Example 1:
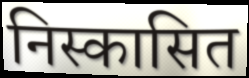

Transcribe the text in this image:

निस्कासित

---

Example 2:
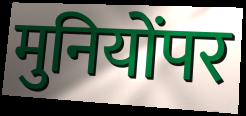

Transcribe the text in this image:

मुनियोंपर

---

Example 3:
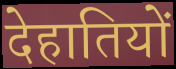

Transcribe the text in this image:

देहातियों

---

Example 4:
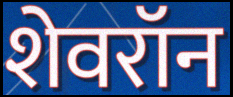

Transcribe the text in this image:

शेवरॉन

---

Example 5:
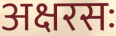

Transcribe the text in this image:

अक्षरसः